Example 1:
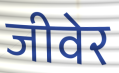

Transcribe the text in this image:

जीवेर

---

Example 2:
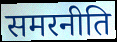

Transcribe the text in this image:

समरनीति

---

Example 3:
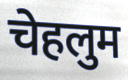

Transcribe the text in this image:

चेहलुम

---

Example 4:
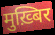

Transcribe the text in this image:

मुख़्बिर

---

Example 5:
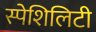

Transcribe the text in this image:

स्पेशिलिटी